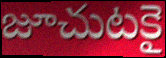
జూచుటకై